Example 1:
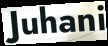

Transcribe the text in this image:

Juhani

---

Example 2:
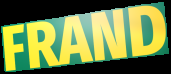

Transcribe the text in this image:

FRAND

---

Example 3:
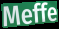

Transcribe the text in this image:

Meffe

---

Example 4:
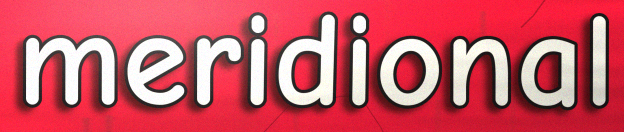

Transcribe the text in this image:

meridional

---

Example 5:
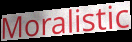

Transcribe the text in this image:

Moralistic